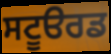
ਸਟੂੳਰਡ